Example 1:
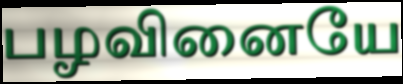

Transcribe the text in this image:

பழவினையே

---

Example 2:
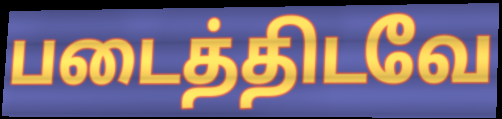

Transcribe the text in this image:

படைத்திடவே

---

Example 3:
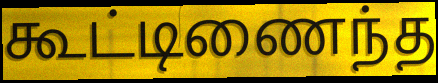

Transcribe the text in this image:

கூட்டிணைந்த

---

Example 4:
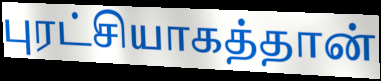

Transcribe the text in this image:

புரட்சியாகத்தான்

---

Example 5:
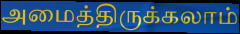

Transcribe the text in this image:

அமைத்திருக்கலாம்